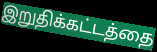
இறுதிக்கட்டத்தை